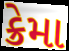
ક્રેમા